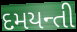
દમયન્તી